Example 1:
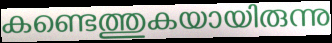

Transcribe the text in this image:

കണ്ടെത്തുകയായിരുന്നു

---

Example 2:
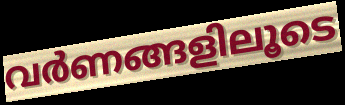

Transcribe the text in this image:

വർണങ്ങളിലൂടെ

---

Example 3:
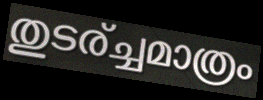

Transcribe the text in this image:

തുടര്ച്ചമാത്രം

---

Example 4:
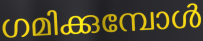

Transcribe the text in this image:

ഗമിക്കുമ്പോൾ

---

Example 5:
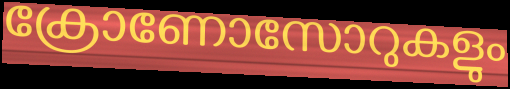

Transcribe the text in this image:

ക്രോണോസോറുകളും